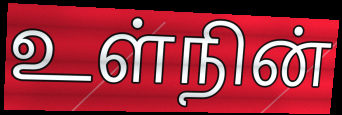
உள்நின்